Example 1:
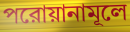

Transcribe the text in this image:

পরোয়ানামূলে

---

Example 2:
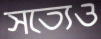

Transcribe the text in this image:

সত্যেও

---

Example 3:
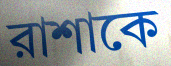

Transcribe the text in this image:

রাশাকে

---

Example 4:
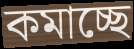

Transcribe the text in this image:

কমাচ্ছে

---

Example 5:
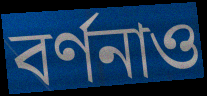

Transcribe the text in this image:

বর্ণনাও